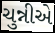
ચુન્નીએ